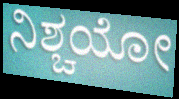
ನಿಶ್ಚಯೋ